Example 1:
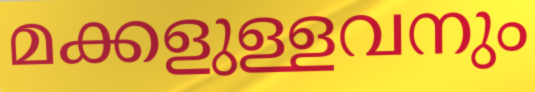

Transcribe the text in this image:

മക്കളുള്ളവനും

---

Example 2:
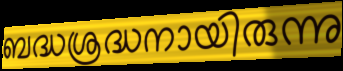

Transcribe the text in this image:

ബദ്ധശ്രദ്ധനായിരുന്നു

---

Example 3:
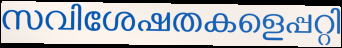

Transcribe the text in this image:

സവിശേഷതകളെപ്പറ്റി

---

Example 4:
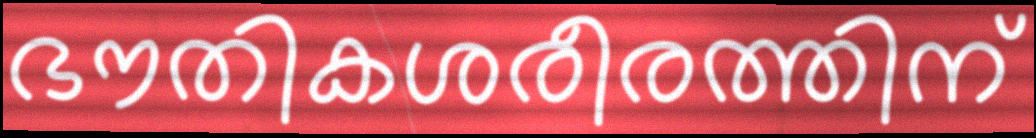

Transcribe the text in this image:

ഭൗതികശരീരത്തിന്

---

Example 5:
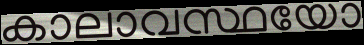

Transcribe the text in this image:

കാലാവസ്ഥയോ